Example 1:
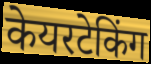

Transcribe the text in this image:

केयरटेकिंग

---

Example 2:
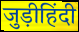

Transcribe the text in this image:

जुड़ीहिंदी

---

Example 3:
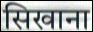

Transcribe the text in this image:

सिखाना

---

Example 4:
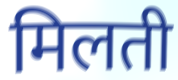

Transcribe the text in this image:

मिलती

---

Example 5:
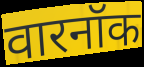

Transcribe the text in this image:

वारनॉक